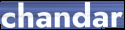
chandar